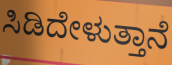
ಸಿಡಿದೇಳುತ್ತಾನೆ